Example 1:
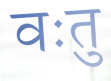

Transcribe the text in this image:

वःतु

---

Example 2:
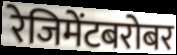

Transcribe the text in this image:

रेजिमेंटबरोबर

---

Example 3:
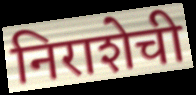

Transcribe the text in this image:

निराशेची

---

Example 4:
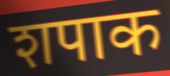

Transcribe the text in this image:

शपाक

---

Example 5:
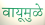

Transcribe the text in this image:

वायूमुळे